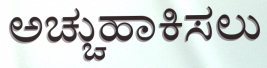
ಅಚ್ಚುಹಾಕಿಸಲು